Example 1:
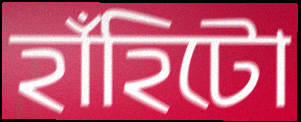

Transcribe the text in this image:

হাঁহিটো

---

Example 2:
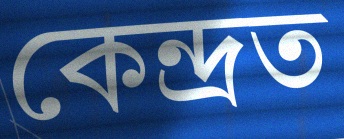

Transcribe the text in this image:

কেন্দ্ৰত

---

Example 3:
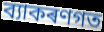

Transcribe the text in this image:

ব্যাকৰণগত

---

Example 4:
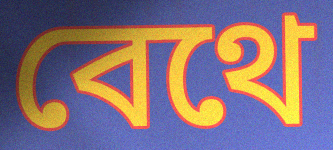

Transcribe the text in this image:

বেথে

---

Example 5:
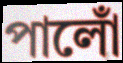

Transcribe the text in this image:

পালোঁ